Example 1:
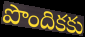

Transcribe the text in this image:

పొందికకు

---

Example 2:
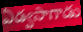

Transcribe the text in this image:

ఏడ్వసాగాడు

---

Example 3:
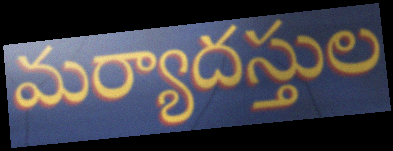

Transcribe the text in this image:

మర్యాదస్తుల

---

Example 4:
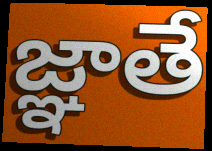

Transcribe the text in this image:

జ్ఞాతే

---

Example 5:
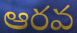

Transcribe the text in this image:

ఆరవ